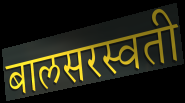
बालसरस्वती